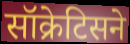
सॉक्रेटिसने